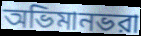
অভিমানভরা